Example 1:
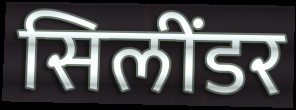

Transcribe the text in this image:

सिलींडर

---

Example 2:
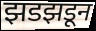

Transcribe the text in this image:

झडझडून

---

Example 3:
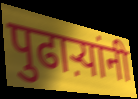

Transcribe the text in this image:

पुढाऱ्‍यांनी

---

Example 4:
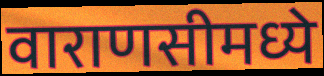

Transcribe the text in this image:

वाराणसीमध्ये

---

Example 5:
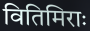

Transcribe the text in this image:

वितिमिराः